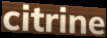
citrine